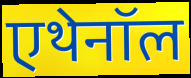
एथेनॉल